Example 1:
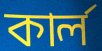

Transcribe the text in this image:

কাৰ্ল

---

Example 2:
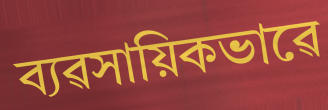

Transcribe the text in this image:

ব্যৱসায়িকভাৱে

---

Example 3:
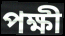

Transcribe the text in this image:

পক্ষী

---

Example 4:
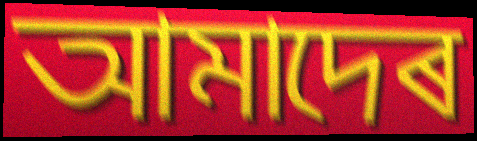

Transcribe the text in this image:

আমাদেৰ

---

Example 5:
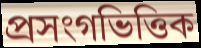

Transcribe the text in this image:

প্ৰসংগভিত্তিক